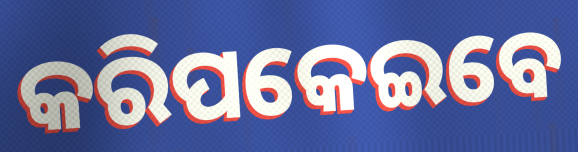
କରିପକେଇବେ